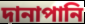
দানাপানি